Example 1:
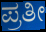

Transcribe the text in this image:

ಪ್ರತೀ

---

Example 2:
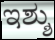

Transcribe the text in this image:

ಇಶ್ಶು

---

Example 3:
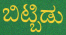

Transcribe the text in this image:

ಬಿಟ್ಬಿಡು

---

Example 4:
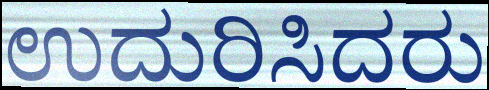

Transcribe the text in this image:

ಉದುರಿಸಿದರು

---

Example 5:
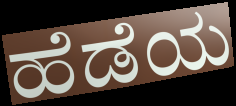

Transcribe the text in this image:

ಹೆಡೆಯ